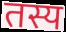
तस्य